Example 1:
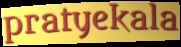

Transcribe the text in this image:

pratyekala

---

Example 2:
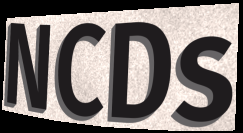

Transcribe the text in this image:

NCDs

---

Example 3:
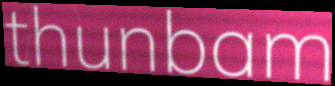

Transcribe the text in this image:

thunbam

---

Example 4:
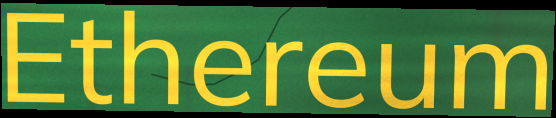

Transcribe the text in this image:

Ethereum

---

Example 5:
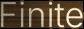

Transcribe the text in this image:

Finite